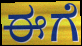
ಈಗೆ